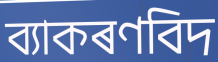
ব্যাকৰণবিদ